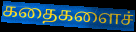
கதைகளைச்